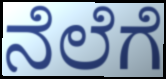
ನೆಲೆಗೆ